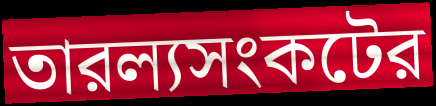
তারল্যসংকটের